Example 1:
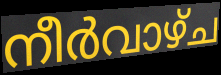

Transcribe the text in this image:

നീർവാഴ്ച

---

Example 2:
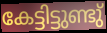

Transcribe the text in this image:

കേട്ടിട്ടുണ്ടു്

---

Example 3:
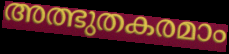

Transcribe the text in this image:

അത്ഭുതകരമാം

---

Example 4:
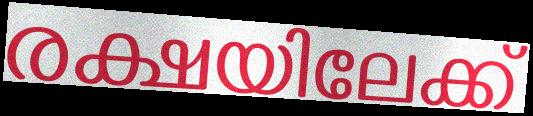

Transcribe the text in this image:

രക്ഷയിലേക്ക്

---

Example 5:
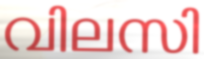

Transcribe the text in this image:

വിലസി